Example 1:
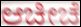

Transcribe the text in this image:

ಆಚೀಚೆ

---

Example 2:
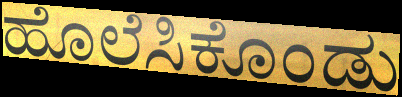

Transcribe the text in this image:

ಹೊಲೆಸಿಕೊಂಡು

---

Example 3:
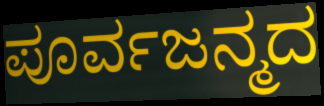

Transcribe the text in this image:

ಪೂರ್ವಜನ್ಮದ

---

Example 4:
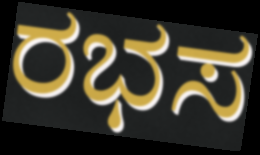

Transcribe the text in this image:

ರಭಸ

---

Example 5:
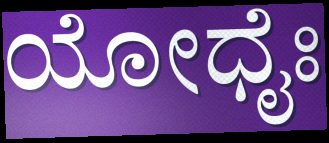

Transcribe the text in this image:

ಯೋಧೈಃ